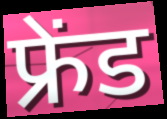
फ्रेंड